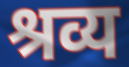
श्रव्य